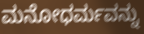
ಮನೋಧರ್ಮವನ್ನು